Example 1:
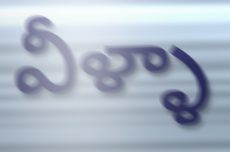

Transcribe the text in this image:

వీళ్ళా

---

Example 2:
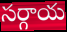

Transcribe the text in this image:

సర్గాయ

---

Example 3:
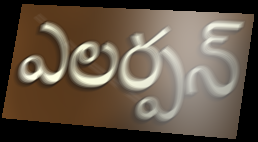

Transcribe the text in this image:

ఎలర్పన్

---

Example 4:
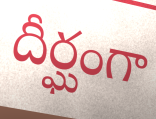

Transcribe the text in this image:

దీర్ఘంగా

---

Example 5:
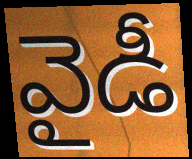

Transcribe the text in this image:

వైడీ